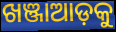
ଖଞ୍ଜାଆଡ଼କୁ